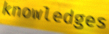
knowledges